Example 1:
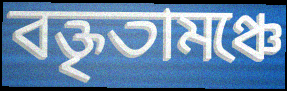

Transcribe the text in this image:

বক্তৃতামঞ্চে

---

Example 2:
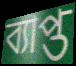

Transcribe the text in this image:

ব্যাপ্ত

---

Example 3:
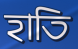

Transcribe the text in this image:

হাতি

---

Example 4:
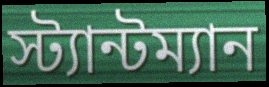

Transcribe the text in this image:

স্ট্যান্টম্যান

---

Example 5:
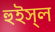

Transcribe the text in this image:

হুইস্‌ল